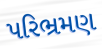
પરિભ્રમણ